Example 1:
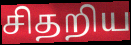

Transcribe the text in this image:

சிதறிய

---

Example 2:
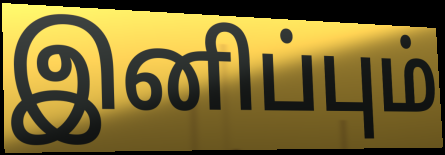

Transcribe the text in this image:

இனிப்பும்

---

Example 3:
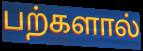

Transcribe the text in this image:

பற்களால்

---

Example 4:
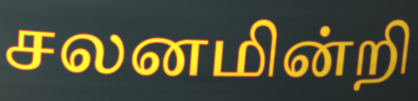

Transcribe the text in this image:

சலனமின்றி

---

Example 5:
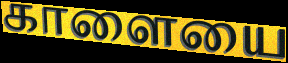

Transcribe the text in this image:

காளையை